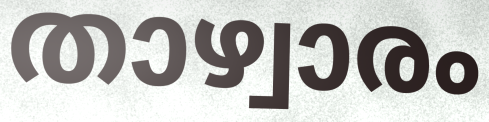
താഴ്വാരം